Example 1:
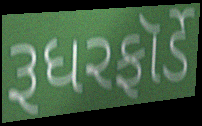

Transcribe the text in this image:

રૂધરફૉર્ડે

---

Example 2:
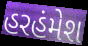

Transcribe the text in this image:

હરહંમેશ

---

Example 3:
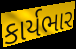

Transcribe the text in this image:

કાર્યભાર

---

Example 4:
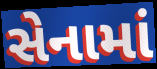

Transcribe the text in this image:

સેનામાં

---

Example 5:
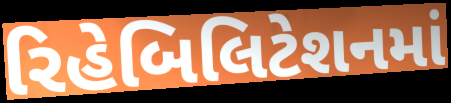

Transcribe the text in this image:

રિહેબિલિટેશનમાં